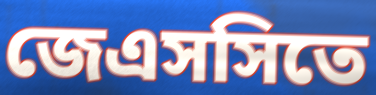
জেএসসিতে